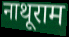
नाथूराम